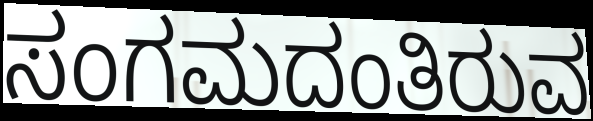
ಸಂಗಮದಂತಿರುವ